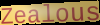
Zealous